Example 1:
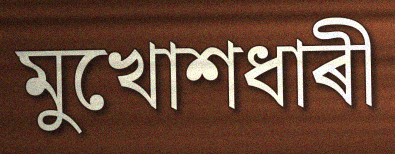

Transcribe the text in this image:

মুখোশধাৰী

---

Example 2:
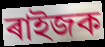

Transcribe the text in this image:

ৰাইজক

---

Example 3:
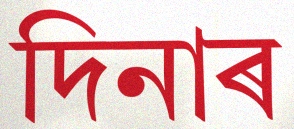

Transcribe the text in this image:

দিনাৰ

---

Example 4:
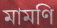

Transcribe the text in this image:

মামণি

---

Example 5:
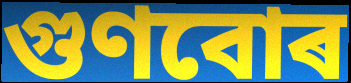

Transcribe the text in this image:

গুণবোৰ